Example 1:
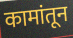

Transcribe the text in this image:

कामांतून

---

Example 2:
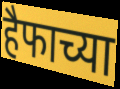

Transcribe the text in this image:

हैफाच्या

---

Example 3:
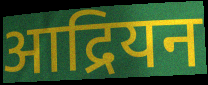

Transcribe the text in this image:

आद्रियन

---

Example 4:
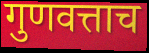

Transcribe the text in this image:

गुणवत्ताच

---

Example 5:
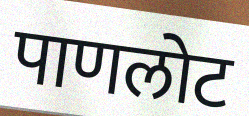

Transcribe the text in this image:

पाणलोट